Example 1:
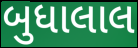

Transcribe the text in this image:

બુધાલાલ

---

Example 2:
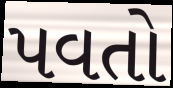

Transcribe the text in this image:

પવતો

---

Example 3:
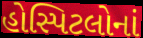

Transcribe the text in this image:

હોસ્પિટલોનાં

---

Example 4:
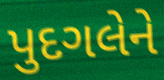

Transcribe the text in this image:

પુદગલેને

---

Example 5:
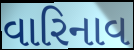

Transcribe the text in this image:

વારિનાવ